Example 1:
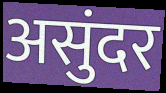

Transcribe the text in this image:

असुंदर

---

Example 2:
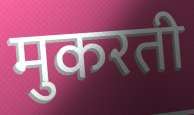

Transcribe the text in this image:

मुकरती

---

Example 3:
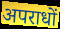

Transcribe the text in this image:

अपराधों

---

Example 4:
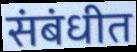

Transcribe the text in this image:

संबंधीत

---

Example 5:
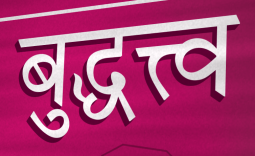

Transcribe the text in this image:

बुद्धत्त्व